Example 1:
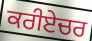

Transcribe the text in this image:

ਕਰੀਏਚਰ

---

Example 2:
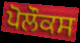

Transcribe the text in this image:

ਪੋਲੌਕਸ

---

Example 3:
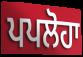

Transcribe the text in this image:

ਪਪਲੋਹਾ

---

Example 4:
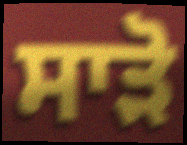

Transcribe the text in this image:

ਸਾੜੋ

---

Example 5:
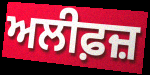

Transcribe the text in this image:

ਅਲੀਫ਼ਜ਼